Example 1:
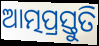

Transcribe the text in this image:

ଆତ୍ମପ୍ରସ୍ତୁତି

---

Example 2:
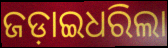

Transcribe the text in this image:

ଜଡ଼ାଇଧରିଲା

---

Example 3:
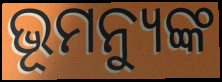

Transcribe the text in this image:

ଭୂମନ୍ୟୁଙ୍କ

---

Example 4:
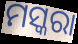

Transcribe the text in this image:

ମସ୍କରା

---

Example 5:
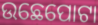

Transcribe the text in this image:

ଉଛେପୋଟା